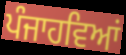
ਪੰਜਾਹਵਿਆਂ